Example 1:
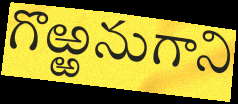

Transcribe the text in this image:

గొఱ్ఱనుగాని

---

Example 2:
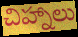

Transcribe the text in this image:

చిహ్నాలు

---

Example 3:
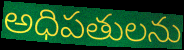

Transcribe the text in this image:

అధిపతులను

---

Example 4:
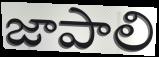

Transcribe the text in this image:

జాపాలి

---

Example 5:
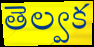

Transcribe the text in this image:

తెల్వక